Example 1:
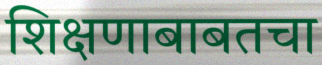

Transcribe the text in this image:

शिक्षणाबाबतचा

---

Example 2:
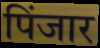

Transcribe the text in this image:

पिंजार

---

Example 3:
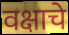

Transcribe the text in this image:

वक्षाचे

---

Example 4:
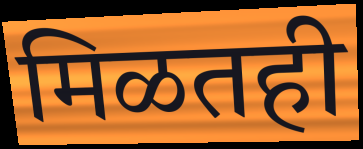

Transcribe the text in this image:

मिळतही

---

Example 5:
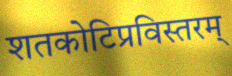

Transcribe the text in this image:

शतकोटिप्रविस्तरम्